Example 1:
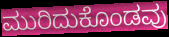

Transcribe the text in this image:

ಮುರಿದುಕೊಂಡವು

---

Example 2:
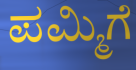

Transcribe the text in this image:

ಪಮ್ಮಿಗೆ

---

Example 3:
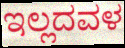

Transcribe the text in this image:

ಇಲ್ಲದವಳ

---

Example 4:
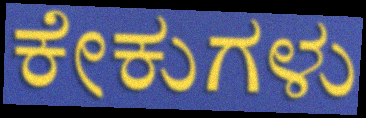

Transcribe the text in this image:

ಕೇಕುಗಳು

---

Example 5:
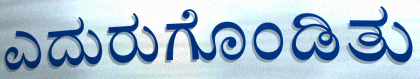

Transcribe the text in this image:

ಎದುರುಗೊಂಡಿತು